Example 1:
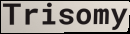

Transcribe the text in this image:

Trisomy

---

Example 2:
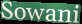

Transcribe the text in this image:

Sowani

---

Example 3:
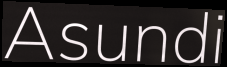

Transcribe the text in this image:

Asundi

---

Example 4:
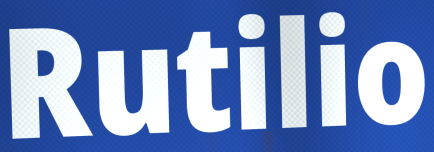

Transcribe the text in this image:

Rutilio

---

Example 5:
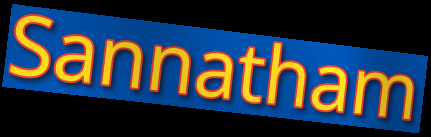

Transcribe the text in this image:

Sannatham